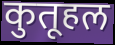
कुतूहल